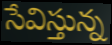
సేవిస్తున్న